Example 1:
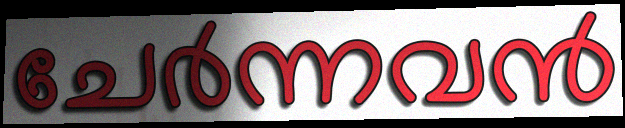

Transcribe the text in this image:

ചേർന്നവൻ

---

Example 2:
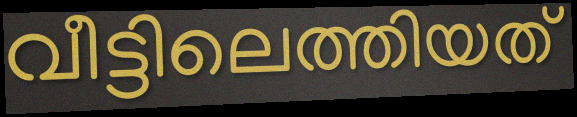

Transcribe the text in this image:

വീട്ടിലെത്തിയത്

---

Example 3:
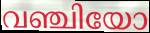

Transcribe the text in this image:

വഞ്ചിയോ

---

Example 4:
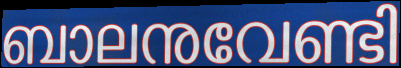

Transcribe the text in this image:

ബാലനുവേണ്ടി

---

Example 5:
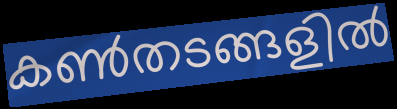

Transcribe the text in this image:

കൺതടങ്ങളിൽ